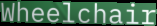
Wheelchair